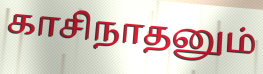
காசிநாதனும்